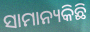
ସାମାନ୍ୟକିଛି